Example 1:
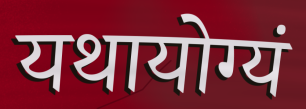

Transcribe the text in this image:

यथायोग्यं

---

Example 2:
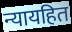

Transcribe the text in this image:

न्यायहित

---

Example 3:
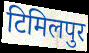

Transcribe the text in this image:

टिमिलपुर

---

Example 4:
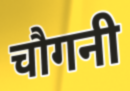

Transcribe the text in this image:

चौगनी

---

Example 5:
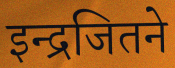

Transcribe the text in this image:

इन्द्रजितने